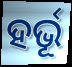
ହର୍ଭୂ